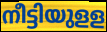
നീട്ടിയുളള